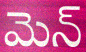
మెన్